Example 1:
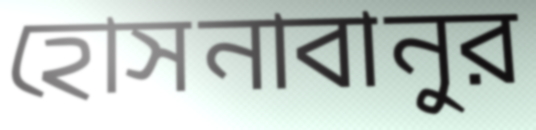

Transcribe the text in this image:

হোসনাবানুর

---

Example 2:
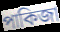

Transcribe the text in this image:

পাকিজা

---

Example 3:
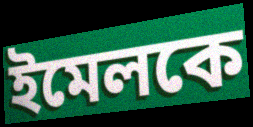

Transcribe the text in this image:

ইমেলকে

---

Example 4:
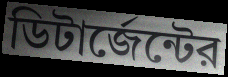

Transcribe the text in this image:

ডিটার্জেন্টের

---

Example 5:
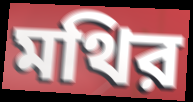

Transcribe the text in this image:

মথির